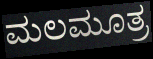
ಮಲಮೂತ್ರ